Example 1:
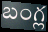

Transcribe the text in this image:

బంగ్ల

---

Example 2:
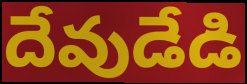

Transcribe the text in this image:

దేవుడేడి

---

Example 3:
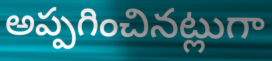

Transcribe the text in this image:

అప్పగించినట్లుగా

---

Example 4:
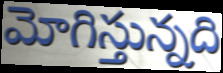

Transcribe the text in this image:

మోగిస్తున్నది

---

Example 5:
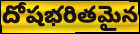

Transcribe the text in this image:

దోషభరితమైన